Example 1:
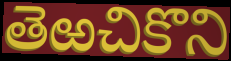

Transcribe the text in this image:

తెఱచికొని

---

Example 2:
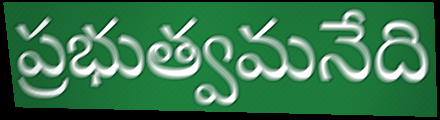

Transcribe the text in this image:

ప్రభుత్వమనేది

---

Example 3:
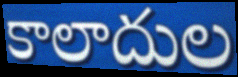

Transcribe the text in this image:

కాలాదుల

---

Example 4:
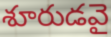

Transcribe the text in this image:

శూరుడవై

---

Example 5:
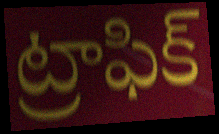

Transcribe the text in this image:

ట్రాఫిక్